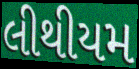
લીથીયમ